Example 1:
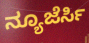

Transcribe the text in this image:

ನ್ಯೂಜೆರ್ಸಿ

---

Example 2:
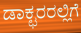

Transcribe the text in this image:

ಡಾಕ್ಟರರಲ್ಲಿಗೆ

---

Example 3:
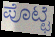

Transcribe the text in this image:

ಪೊಟ್ಟೆ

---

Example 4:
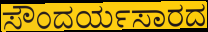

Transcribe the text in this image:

ಸೌಂದರ್ಯಸಾರದ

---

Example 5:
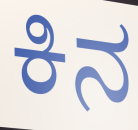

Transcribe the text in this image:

ಕಿನ